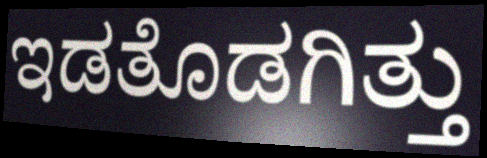
ಇಡತೊಡಗಿತ್ತು